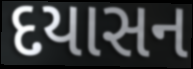
દયાસન